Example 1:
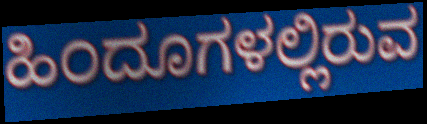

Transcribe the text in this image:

ಹಿಂದೂಗಳಲ್ಲಿರುವ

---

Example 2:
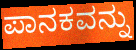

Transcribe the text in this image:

ಪಾನಕವನ್ನು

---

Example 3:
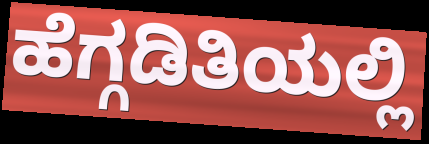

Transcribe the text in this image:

ಹೆಗ್ಗಡಿತಿಯಲ್ಲಿ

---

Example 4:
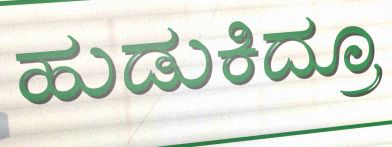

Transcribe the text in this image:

ಹುಡುಕಿದ್ರೂ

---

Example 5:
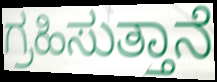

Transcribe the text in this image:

ಗ್ರಹಿಸುತ್ತಾನೆ